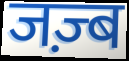
जज़्ब